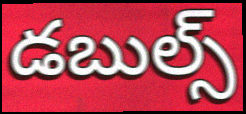
డబుల్స్